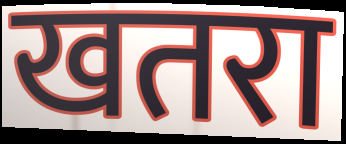
खतरा